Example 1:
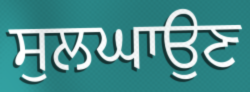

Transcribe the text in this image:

ਸੁਲਘਾਉਣ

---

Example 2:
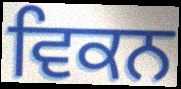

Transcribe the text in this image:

ਵਿਕਨ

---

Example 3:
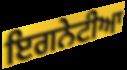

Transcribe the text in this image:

ਇਗਨੇਟੀਆ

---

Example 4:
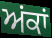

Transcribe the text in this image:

ਅਂਕਾਂ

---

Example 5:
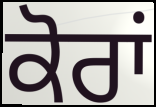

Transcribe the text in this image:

ਕੋਰਾਂ